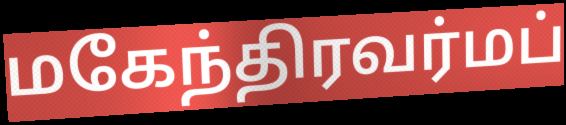
மகேந்திரவர்மப்